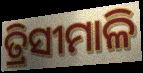
ତ୍ରିସୀମାଳି